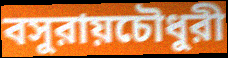
বসুরায়চৌধুরী